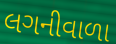
લગનીવાળા